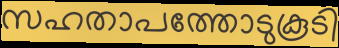
സഹതാപത്തോടുകൂടി